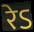
रेऽ